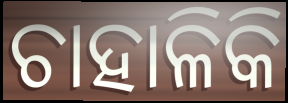
ଚାହାଳିକି